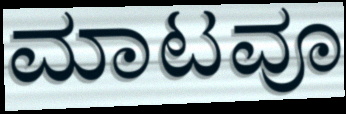
ಮಾಟವೂ